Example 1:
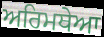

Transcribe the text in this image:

ਅਰਿਮਥੇਆ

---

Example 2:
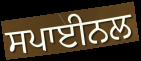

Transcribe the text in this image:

ਸਪਾਈਨਲ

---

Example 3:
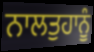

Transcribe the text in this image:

ਨਾਲਤੁਹਾਨੂੰ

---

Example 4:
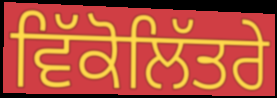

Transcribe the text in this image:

ਵਿੱਕੋਲਿੱਤਰੇ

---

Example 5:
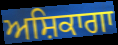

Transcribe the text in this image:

ਅਸ਼ਿਕਾਗਾ